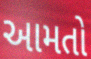
આમતો